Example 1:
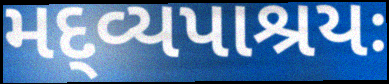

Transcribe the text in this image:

મદ્વ્યપાશ્રયઃ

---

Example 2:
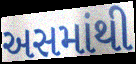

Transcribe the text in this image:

અસમાંથી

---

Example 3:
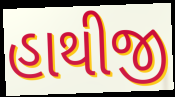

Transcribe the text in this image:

હાથીજી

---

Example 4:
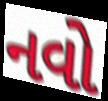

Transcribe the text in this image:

નવો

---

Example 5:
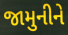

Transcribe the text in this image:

જામુનીને